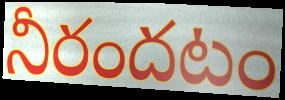
నీరందటం